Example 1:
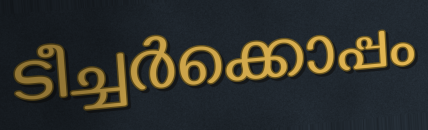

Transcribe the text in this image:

ടീച്ചർക്കൊപ്പം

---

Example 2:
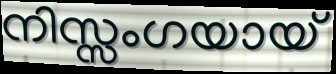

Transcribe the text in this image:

നിസ്സംഗയായ്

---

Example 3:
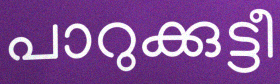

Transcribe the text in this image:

പാറുക്കുട്ടീ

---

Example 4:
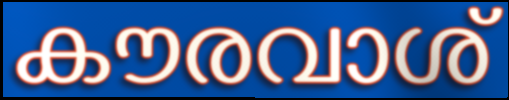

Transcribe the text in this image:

കൗരവാശ്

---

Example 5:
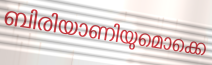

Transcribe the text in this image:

ബിരിയാണിയുമൊക്കെ